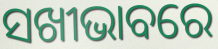
ସଖୀଭାବରେ